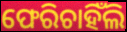
ଫେରିଚାହିଁଲି